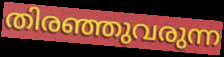
തിരഞ്ഞുവരുന്ന